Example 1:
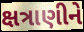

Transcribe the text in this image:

ક્ષત્રાણીને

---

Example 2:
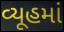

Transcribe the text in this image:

વ્યૂહમાં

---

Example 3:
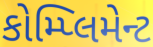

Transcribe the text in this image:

કોમ્પ્લિમેન્ટ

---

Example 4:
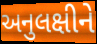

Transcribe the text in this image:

અનુલક્ષીને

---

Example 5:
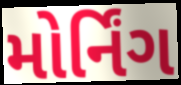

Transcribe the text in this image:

મોર્નિંગ